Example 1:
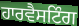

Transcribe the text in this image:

ਹਾਰਵੈਸਟਿੰਗ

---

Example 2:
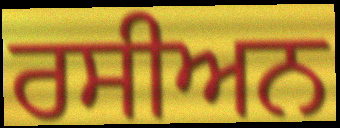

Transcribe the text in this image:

ਰਸੀਅਨ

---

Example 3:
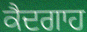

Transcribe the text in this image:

ਕੈਦਗਾਹ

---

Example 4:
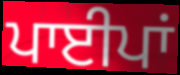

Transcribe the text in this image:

ਪਾਈਪਾਂ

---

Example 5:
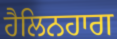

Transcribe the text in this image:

ਹੈਲਿਨਹਾਗ